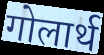
गोलार्थ